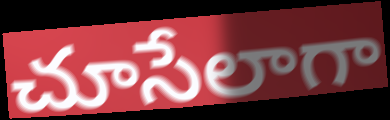
చూసేలాగా